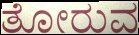
ತೋರುವ